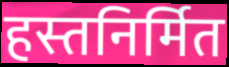
हस्तनिर्मित